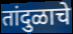
तांदुळाचे